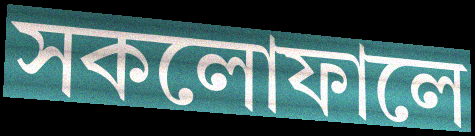
সকলোফালে